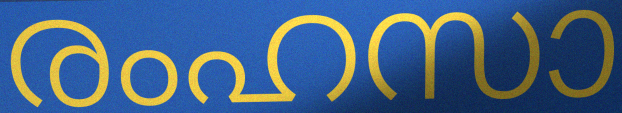
രംഹസാ